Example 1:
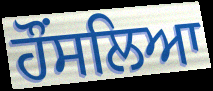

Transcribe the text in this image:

ਹੌਂਸਲਿਆ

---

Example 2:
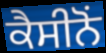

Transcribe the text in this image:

ਕੈਸੀਨੋਂ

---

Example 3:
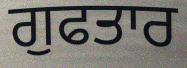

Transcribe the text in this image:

ਗੁਫਤਾਰ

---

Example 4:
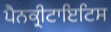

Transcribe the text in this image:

ਪੈਨਕ੍ਰੀਟਾਇਟਿਸ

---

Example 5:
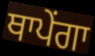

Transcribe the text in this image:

ਥਾਪੇਂਗਾ